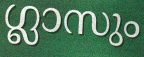
ഗ്ലാസും